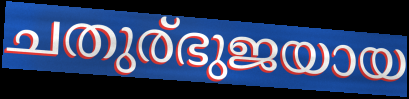
ചതുര്ഭുജയായ